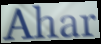
Ahar